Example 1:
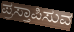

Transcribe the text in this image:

ಪ್ರಸ್ತಾಪಿಸುವ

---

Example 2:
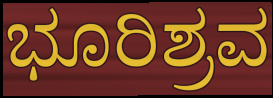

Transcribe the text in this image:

ಭೂರಿಶ್ರವ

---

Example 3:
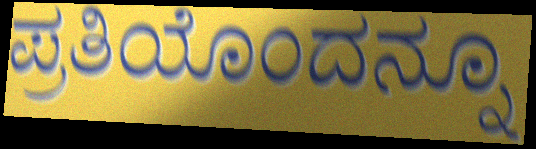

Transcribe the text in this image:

ಪ್ರತಿಯೊಂದನ್ನೂ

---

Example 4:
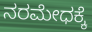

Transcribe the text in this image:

ನರಮೇಧಕ್ಕೆ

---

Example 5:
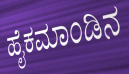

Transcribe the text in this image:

ಹೈಕಮಾಂಡಿನ